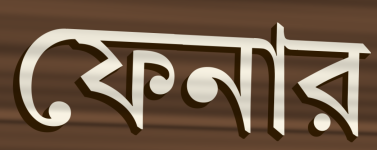
ফেনার